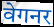
वेगनर